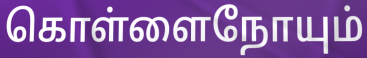
கொள்ளைநோயும்